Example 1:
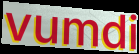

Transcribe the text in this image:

vumdi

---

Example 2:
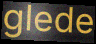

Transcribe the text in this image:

glede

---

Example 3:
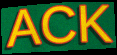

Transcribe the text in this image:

ACK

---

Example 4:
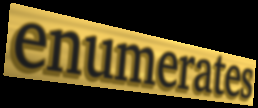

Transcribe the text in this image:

enumerates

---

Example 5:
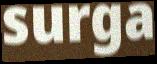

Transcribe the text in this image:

surga